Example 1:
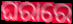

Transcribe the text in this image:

ଘରାରେ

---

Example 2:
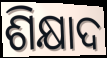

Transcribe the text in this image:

ଶିକ୍ଷାଦ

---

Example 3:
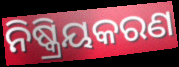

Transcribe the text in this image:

ନିଷ୍କ୍ରିୟକରଣ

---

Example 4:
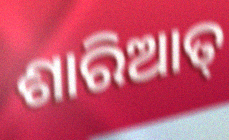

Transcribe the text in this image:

ଶାରିଆତ୍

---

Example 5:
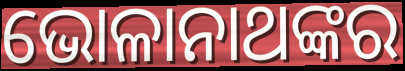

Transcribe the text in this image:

ଭୋଳାନାଥଙ୍କର